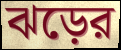
ঝড়ের